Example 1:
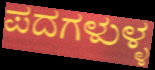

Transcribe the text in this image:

ಪದಗಳುಳ್ಳ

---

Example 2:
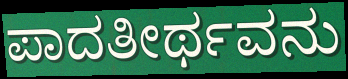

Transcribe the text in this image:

ಪಾದತೀರ್ಥವನು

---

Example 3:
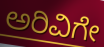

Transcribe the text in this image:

ಅರಿವಿಗೇ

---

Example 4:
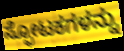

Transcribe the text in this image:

ಸ್ಫೋಟಕಗಳನ್ನು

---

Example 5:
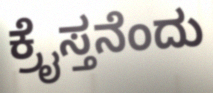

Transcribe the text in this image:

ಕ್ರೈಸ್ತನೆಂದು